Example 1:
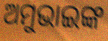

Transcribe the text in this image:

ଅମୁଭାଇଙ୍କ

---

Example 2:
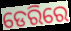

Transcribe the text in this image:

ଡେରିରେ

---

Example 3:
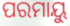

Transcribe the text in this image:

ପରମାୟୁ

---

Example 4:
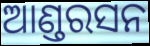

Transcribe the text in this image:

ଆଣ୍ଡରସନ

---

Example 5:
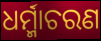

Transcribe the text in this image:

ଧର୍ମ୍ମାଚରଣ